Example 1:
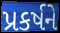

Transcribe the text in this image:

પ્રકર્ષને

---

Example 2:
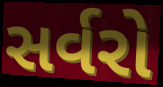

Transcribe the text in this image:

સર્વરો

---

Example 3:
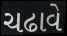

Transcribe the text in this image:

ચઢાવે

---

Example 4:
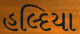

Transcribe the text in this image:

હલ્દિયા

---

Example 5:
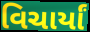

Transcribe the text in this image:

વિચાર્યાં